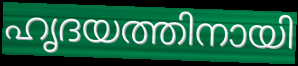
ഹൃദയത്തിനായി